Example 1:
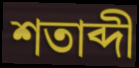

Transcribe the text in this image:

শতাব্দী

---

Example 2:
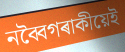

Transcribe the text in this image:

নব্বৈগৰাকীয়েই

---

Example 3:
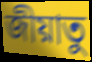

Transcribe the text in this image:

জীয়াতু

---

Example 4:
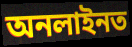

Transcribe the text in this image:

অনলাইনত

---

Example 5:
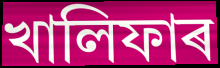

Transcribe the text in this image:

খালিফাৰ